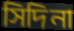
সিদিনা